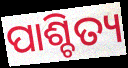
ପାଶ୍ଚିତ୍ୟ